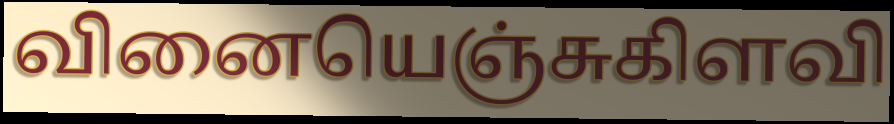
வினையெஞ்சுகிளவி